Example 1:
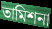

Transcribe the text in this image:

তামিশনা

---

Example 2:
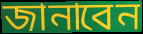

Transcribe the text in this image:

জানাবেন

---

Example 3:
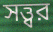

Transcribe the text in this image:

সত্ত্বর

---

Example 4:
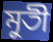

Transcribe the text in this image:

মুতী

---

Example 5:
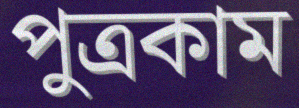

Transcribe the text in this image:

পুত্রকাম